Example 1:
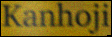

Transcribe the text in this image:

Kanhoji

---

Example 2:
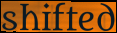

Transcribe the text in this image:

shifted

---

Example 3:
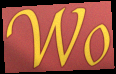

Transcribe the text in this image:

Wo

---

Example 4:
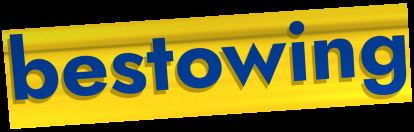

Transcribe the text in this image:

bestowing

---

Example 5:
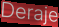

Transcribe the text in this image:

Deraje